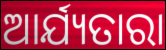
ଆର୍ଯ୍ୟତାରା